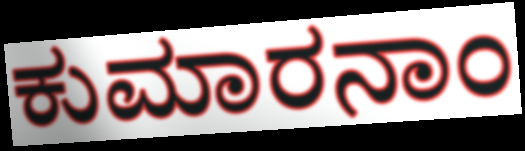
ಕುಮಾರನಾಂ